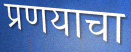
प्रणयाचा